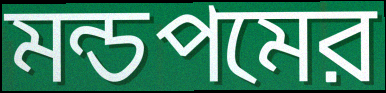
মন্ডপমের